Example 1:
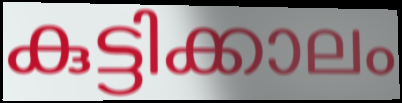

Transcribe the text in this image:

കുട്ടിക്കാലം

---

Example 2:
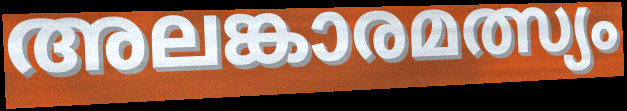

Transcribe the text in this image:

അലങ്കാരമത്സ്യം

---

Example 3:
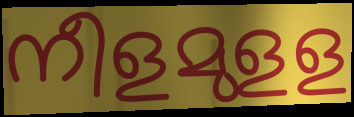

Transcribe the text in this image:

നീളമുളള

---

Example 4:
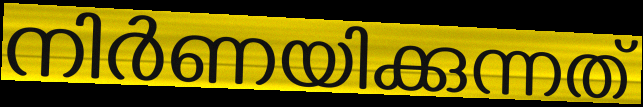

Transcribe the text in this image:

നിർണയിക്കുന്നത്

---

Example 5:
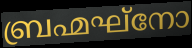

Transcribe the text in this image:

ബ്രഹ്മഘ്നോ